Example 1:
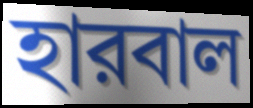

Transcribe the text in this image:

হারবাল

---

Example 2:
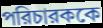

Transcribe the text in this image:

পরিচারককে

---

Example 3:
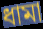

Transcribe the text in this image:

ধামা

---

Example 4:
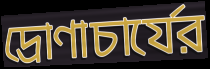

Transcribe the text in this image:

দ্রোণাচার্যের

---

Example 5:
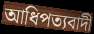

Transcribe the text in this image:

আধিপত্যবাদী